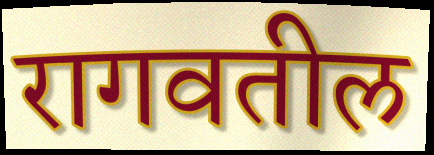
रागवतील